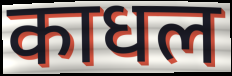
काधल